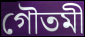
গৌতমী